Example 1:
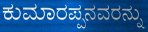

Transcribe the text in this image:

ಕುಮಾರಪ್ಪನವರನ್ನು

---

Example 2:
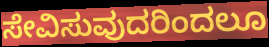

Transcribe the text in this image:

ಸೇವಿಸುವುದರಿಂದಲೂ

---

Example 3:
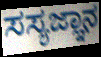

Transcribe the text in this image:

ಸಸ್ಯಜ್ಞಾನ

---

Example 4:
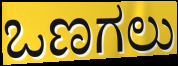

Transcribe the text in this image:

ಒಣಗಲು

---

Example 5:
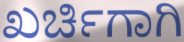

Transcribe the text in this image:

ಖರ್ಚಿಗಾಗಿ